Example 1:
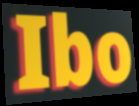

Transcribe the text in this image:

Ibo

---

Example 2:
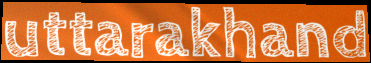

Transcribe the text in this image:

uttarakhand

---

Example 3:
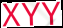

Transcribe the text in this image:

XYY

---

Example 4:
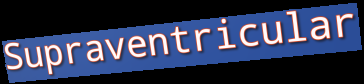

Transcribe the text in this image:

Supraventricular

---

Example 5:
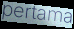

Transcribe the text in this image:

pertama